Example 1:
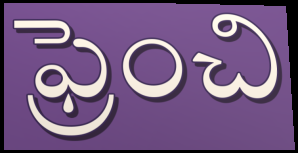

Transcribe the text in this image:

ఫ్రెంచి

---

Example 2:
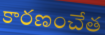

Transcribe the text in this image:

కారణంచేత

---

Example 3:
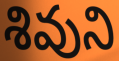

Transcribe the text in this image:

శివుని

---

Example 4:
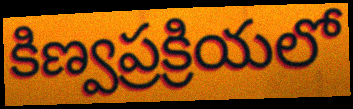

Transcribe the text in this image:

కిణ్వప్రక్రియలో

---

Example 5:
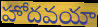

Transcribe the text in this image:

హోదవయా